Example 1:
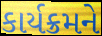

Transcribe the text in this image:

કાર્યક્રમને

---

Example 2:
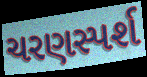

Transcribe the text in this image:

ચરણસ્પર્શ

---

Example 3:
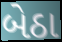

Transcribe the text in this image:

બેઠા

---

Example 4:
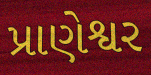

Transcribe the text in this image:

પ્રાણેશ્વર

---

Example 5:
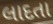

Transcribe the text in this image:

લાદતા